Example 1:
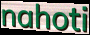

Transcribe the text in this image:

nahoti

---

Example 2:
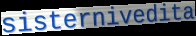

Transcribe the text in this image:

sisternivedita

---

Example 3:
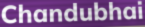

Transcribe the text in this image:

Chandubhai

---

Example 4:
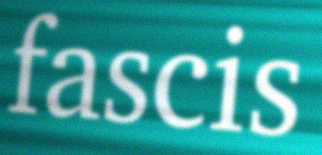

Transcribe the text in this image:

fascis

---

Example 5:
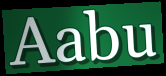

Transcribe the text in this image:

Aabu